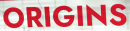
ORIGINS